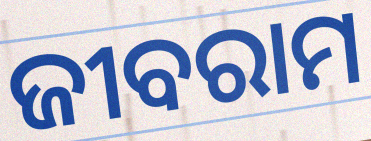
ଜୀବରାମ